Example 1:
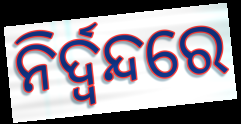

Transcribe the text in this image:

ନିର୍ଦ୍ୱନ୍ଦରେ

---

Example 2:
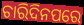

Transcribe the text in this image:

ଚାରିଦିନପରେ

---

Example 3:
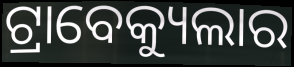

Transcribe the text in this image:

ଟ୍ରାବେକ୍ୟୁଲାର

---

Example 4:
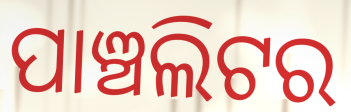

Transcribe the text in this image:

ପାଞ୍ଚଲିଟର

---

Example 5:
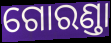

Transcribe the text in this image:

ଗୋରଣ୍ଡା